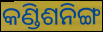
କଣ୍ଡିଶନିଙ୍ଗ